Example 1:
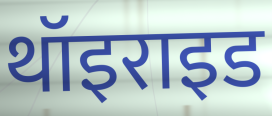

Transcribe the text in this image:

थॉइराइड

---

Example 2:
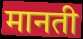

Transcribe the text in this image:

मानती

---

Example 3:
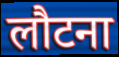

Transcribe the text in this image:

लौटना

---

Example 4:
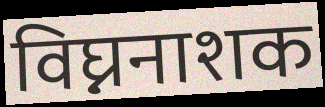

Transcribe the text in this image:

विघ्ननाशक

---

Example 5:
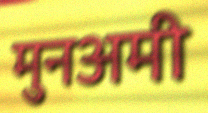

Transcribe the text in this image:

मुनअमी